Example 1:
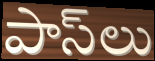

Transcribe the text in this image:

పాస్‌లు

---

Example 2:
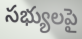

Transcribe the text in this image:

సభ్యులపై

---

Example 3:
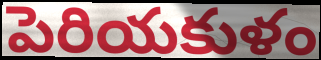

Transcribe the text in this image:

పెరియకుళం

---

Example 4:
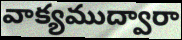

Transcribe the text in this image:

వాక్యముద్వారా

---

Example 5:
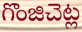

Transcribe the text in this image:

గొంజిచెట్ల